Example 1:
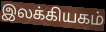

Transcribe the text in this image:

இலக்கியகம்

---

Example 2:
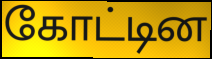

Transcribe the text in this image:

கோட்டின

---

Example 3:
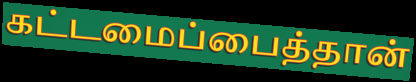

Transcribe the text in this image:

கட்டமைப்பைத்தான்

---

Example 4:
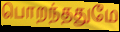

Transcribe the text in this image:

பொறந்ததுமே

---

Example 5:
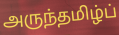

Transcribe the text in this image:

அருந்தமிழ்ப்